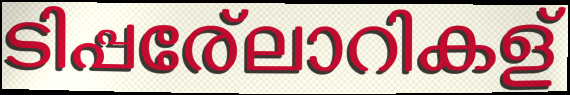
ടിപ്പര്ലോറികള്